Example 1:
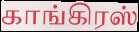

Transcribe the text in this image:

காங்கிரஸ்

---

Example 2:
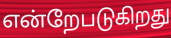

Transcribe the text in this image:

என்றேபடுகிறது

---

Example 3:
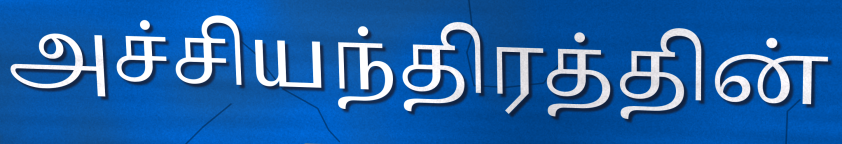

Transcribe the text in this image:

அச்சியந்திரத்தின்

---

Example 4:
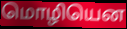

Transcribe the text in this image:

மொழியென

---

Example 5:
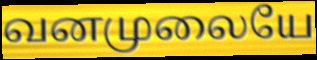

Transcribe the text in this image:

வனமுலையே